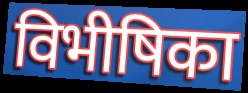
विभीषिका